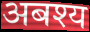
अबश्य